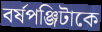
বর্ষপঞ্জিটাকে